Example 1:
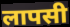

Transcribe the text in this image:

लापसी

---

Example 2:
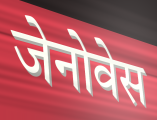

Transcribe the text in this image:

जेनोवेस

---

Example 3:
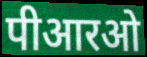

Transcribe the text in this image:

पीआरओ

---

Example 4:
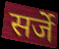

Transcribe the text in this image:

सर्जे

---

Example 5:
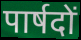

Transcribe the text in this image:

पार्षदों